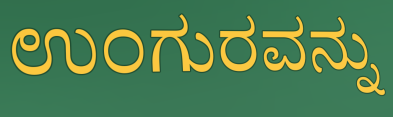
ಉಂಗುರವನ್ನು